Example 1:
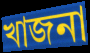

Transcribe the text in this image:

খাজনা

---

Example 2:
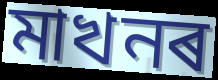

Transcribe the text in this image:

মাখনৰ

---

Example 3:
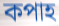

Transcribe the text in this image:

কপাহ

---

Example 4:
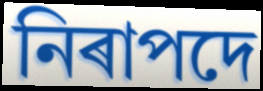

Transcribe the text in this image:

নিৰাপদে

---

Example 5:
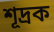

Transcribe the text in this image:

শূদ্ৰক